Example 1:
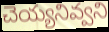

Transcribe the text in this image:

చెయ్యనివ్వని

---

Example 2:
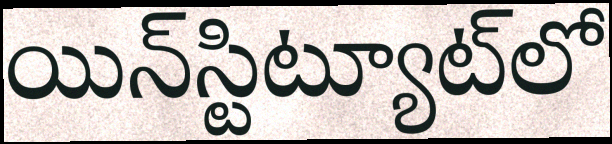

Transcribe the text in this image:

యిన్‌స్టిట్యూట్‌లో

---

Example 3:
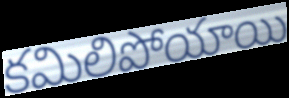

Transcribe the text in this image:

కమిలిపోయాయి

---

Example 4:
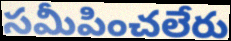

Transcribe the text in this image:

సమీపించలేరు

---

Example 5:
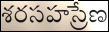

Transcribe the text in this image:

శరసహస్రేణ